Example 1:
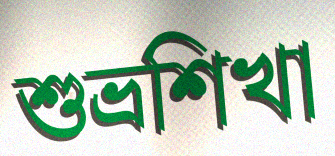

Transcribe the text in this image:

শুভ্রশিখা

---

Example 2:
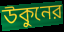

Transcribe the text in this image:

উকুনের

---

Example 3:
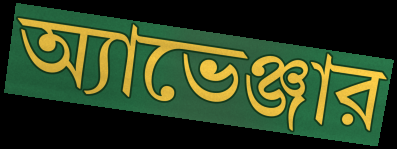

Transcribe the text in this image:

অ্যাভেঞ্জার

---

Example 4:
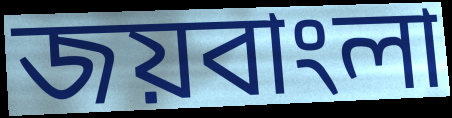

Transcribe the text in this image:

জয়বাংলা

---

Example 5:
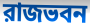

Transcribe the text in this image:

রাজভবন